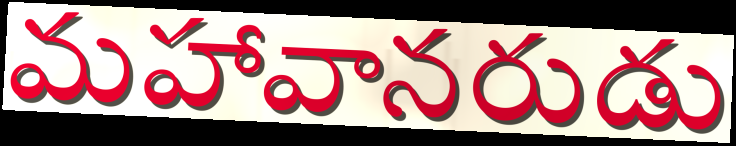
మహావానరుడు